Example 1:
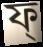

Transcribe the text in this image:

ফ্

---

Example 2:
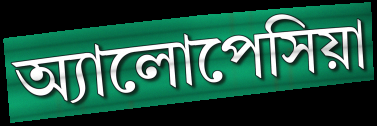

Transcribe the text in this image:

অ্যালোপেসিয়া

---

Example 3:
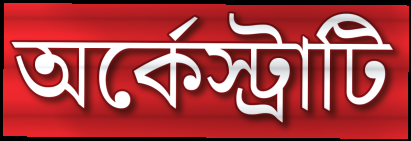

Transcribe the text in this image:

অর্কেস্ট্রাটি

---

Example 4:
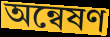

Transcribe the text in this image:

অন্বেষণ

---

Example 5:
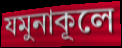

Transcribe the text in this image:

যমুনাকূলে